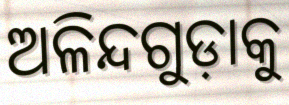
ଅଳିନ୍ଦଗୁଡ଼ାକୁ